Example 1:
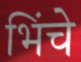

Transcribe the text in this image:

भिंचे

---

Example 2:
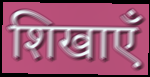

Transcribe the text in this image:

शिखाएँ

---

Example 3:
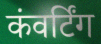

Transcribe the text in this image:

कंवर्टिंग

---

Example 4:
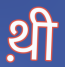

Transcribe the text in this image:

थ़ी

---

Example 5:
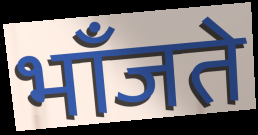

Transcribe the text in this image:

भाँजते